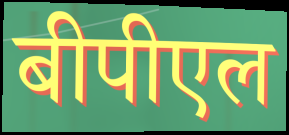
बीपीएल